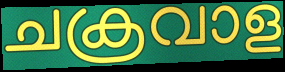
ചക്രവാള